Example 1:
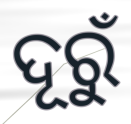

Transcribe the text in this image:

ଦୂରୁଁ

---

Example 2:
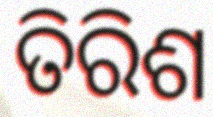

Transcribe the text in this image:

ତିରିଶ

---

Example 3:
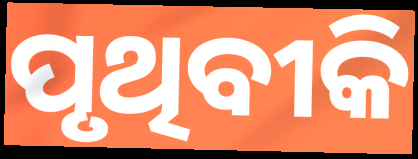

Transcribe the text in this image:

ପୃଥିବୀକି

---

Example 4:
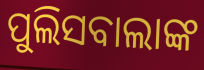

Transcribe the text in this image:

ପୁଲିସବାଲାଙ୍କ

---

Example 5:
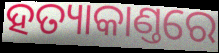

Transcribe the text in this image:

ହତ୍ୟାକାଣ୍ତରେ